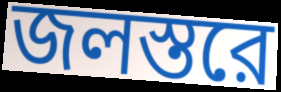
জলস্তরে